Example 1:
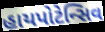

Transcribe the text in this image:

હાયપોટેન્સિવ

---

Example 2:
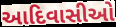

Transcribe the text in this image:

આદિવાસીઓ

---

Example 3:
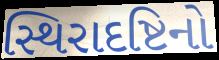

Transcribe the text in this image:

સ્થિરાદષ્ટિનો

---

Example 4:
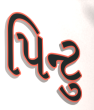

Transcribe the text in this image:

પિન્ટુ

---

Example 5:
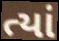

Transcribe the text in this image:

ત્યાં